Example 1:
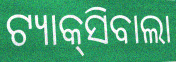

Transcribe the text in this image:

ଟ୍ୟାକ୍‌ସିବାଲା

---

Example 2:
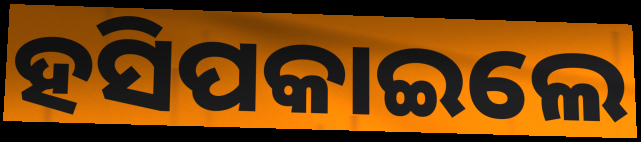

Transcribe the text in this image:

ହସିପକାଇଲେ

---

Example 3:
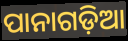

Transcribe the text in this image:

ପାନାଗଡ଼ିଆ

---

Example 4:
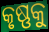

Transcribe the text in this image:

କୃଷ୍ଣକୁ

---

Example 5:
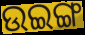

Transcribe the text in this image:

ଉଇଙ୍ଗ